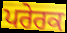
ਪਰੇਰਕ